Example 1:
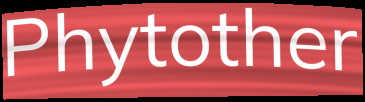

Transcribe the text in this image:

Phytother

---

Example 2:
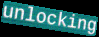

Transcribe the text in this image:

unlocking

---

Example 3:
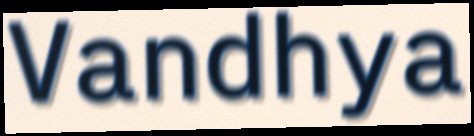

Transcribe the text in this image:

Vandhya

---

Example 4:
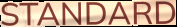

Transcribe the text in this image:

STANDARD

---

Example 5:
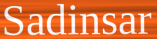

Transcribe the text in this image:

Sadinsar